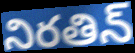
నిరతిన్